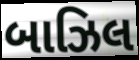
બાઝિલ